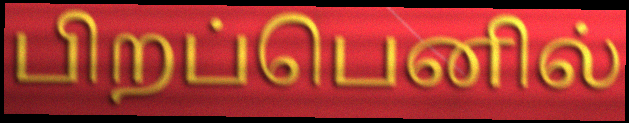
பிறப்பெனில்